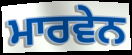
ਮਾਰਵੇਨ